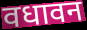
वधावन